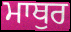
ਮਾਥੁਰ